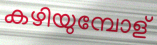
കഴിയുമ്പോള്